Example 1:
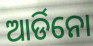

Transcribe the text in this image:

ଆର୍ଡିନୋ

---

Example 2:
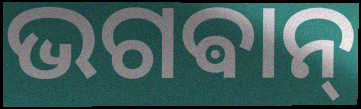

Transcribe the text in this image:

ଭଗଵାନ୍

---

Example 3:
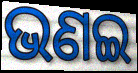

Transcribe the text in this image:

ଭଣଇ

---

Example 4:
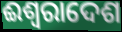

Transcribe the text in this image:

ଈଶ୍ୱରାଦେଶ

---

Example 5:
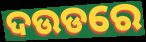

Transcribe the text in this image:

ଦଉଡରେ